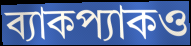
ব্যাকপ্যাকও